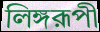
লিঙ্গরূপী